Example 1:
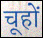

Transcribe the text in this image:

चूहों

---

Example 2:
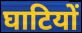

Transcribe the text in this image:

घाटियों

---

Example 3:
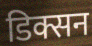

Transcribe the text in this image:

डिक्सन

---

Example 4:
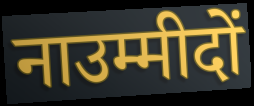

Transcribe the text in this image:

नाउम्मीदों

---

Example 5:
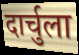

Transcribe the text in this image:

दार्चुला